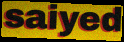
saiyed